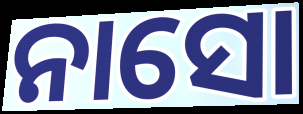
ନାସୋ